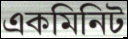
একমিনিট